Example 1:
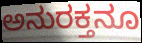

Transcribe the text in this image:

ಅನುರಕ್ತನೂ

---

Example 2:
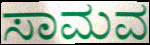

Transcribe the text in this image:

ಸಾಮವ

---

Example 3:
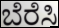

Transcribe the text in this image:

ಬೆರೆಸಿ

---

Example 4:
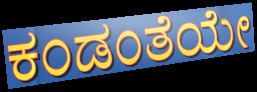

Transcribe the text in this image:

ಕಂಡಂತೆಯೇ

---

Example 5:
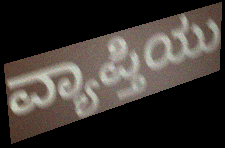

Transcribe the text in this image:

ವ್ಯಾಪ್ತಿಯು